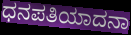
ಧನಪತಿಯಾದನಾ